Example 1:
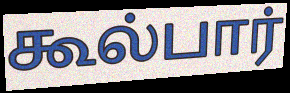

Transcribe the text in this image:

கூல்பார்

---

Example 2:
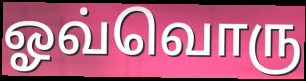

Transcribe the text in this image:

ஓவ்வொரு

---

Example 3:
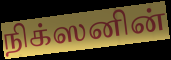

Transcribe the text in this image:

நிக்ஸனின்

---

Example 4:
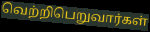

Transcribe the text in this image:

வெற்றிபெறுவார்கள்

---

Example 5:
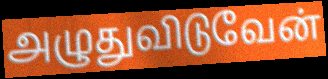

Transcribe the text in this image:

அழுதுவிடுவேன்